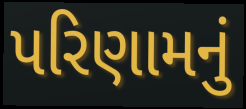
પરિણામનું